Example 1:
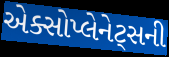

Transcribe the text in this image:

એક્સોપ્લેનેટ્સની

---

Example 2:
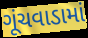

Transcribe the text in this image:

ગૂંચવાડામાં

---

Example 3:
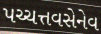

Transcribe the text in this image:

પચ્ચત્તવસેનેવ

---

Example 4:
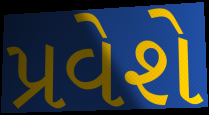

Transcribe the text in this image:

પ્રવેશે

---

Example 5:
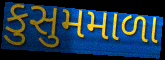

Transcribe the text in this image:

કુસુમમાળા